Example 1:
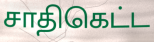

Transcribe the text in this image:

சாதிகெட்ட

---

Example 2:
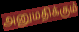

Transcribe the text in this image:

அனுமதிக்கும்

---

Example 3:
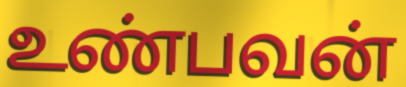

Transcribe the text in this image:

உண்பவன்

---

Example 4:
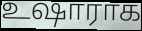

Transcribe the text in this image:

உஷாராக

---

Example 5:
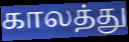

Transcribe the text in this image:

காலத்து